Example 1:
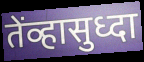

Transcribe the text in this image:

तेंव्हासुध्दा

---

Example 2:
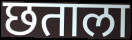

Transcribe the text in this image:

छताला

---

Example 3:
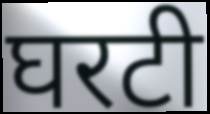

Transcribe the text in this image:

घरटी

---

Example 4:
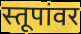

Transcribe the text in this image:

स्तूपांवर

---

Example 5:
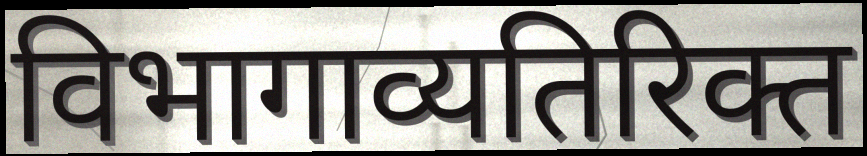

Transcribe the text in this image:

विभागाव्यतिरिक्त